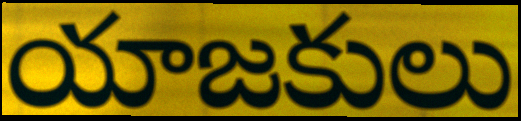
యాజకులు